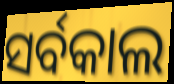
ସର୍ବକାଲ